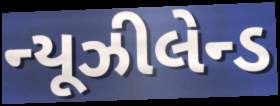
ન્યૂઝીલેન્ડ